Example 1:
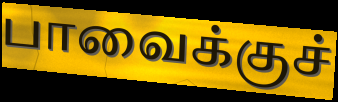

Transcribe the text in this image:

பாவைக்குச்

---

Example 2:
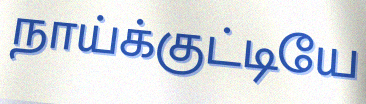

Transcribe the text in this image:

நாய்க்குட்டியே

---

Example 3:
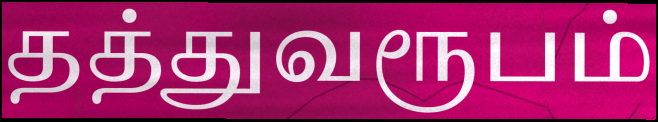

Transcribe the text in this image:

தத்துவரூபம்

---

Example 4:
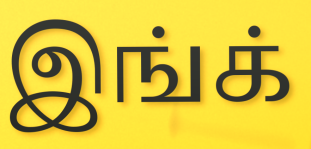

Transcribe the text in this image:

இங்க்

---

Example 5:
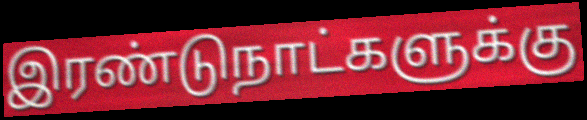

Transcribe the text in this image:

இரண்டுநாட்களுக்கு